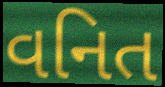
વનિત